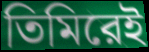
তিমিরেই